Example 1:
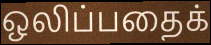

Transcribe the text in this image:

ஒலிப்பதைக்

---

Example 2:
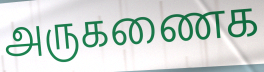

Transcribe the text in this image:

அருகணைக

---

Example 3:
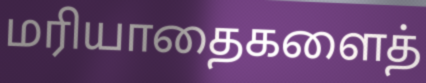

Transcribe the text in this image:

மரியாதைகளைத்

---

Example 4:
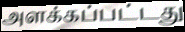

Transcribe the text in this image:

அளக்கப்பட்டது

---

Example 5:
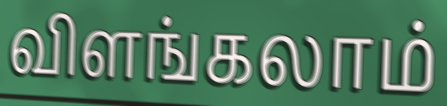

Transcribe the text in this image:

விளங்கலாம்